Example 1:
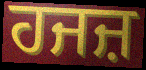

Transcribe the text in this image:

ਹਜਜ਼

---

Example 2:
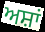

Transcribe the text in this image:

ਅਸ਼ਾਂ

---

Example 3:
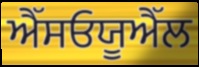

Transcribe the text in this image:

ਐੱਸਓਯੂਐੱਲ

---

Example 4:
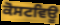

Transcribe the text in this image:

ਕੋਸਟਵਿਊ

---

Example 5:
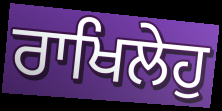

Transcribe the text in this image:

ਰਾਖਿਲੇਹੁ